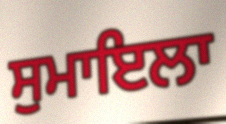
ਸੁਮਾਇਲਾ